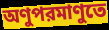
অণুপরমাণুতে